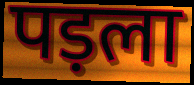
पड़ला